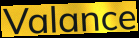
Valance